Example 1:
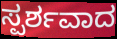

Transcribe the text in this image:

ಸ್ಪರ್ಶವಾದ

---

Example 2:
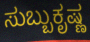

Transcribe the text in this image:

ಸುಬ್ಬುಕೃಷ್ಣ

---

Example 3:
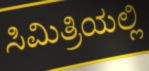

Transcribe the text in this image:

ಸಿಮಿತ್ರಿಯಲ್ಲಿ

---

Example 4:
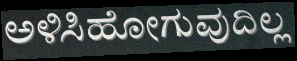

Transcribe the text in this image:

ಅಳಿಸಿಹೋಗುವುದಿಲ್ಲ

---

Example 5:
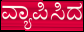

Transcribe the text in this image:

ವ್ಯಾಪಿಸಿದ